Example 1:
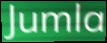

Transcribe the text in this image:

Jumla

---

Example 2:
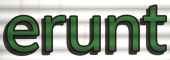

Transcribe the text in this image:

erunt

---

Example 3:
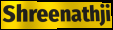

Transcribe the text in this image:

Shreenathji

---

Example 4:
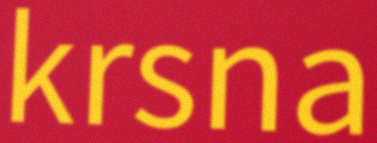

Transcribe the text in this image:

krsna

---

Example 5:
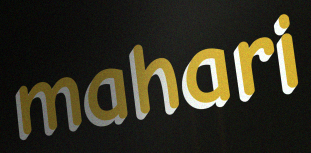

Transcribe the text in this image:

mahari